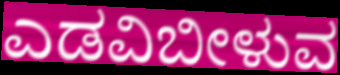
ಎಡವಿಬೀಳುವ